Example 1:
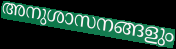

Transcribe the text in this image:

അനുശാസനങ്ങളും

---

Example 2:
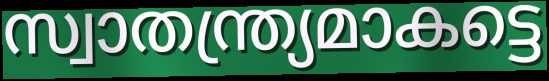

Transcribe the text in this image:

സ്വാതന്ത്ര്യമാകട്ടെ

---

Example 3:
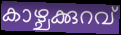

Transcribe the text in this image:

കാഴ്ചക്കുറവ്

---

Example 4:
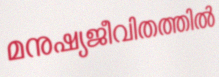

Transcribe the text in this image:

മനുഷ്യജീവിതത്തിൽ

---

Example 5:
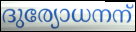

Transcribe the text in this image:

ദുര്യോധനന്